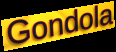
Gondola